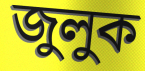
জুলুক